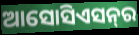
ଆସୋସିଏସନ୍‍ର